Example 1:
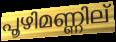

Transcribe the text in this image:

പൂഴിമണ്ണില്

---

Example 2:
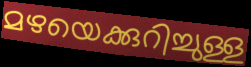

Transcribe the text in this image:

മഴയെക്കുറിച്ചുള്ള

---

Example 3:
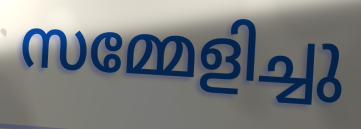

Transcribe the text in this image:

സമ്മേളിച്ചു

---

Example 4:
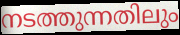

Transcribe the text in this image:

നടത്തുന്നതിലും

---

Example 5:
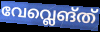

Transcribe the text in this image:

വേവ്ലെങ്ത്